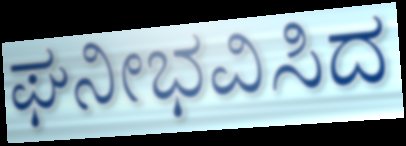
ಘನೀಭವಿಸಿದ